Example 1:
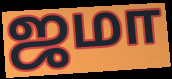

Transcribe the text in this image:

ஜமா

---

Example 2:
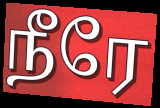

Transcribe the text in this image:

நீரே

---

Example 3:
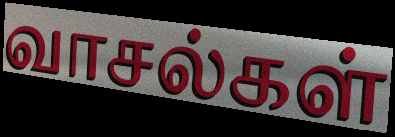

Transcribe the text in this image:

வாசல்கள்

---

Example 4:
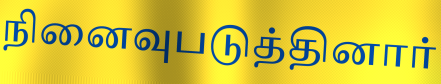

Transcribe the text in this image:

நினைவுபடுத்தினார்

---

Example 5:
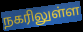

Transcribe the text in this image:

நகரிலுள்ள